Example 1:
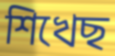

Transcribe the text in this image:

শিখেছ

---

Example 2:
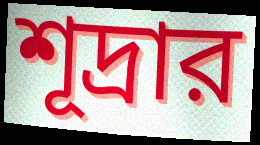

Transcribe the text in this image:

শূদ্রার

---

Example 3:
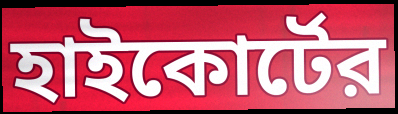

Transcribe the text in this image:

হাইকোর্টের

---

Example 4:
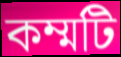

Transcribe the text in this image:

কম্মটি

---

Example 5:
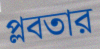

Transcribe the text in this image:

প্লবতার